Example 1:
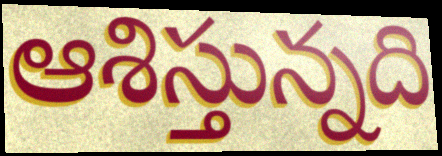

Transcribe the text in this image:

ఆశిస్తున్నది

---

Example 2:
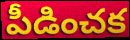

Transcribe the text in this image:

పీడించక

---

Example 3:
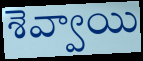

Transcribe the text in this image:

శెవ్వాయి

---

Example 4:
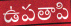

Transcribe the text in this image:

ఉపతాపి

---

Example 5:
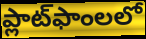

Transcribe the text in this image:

ప్లాట్‌ఫాంలలో